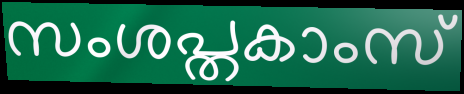
സംശപ്തകാംസ്